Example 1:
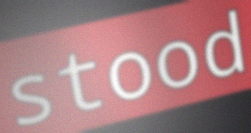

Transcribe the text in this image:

stood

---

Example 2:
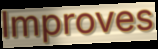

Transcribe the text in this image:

Improves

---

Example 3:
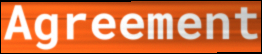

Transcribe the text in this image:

Agreement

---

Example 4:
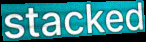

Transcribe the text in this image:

stacked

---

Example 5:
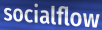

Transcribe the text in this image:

socialflow